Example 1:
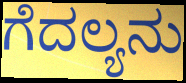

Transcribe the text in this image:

ಗೆದಲ್ಯನು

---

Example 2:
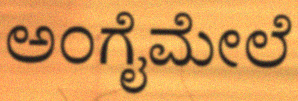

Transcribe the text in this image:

ಅಂಗೈಮೇಲೆ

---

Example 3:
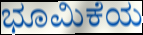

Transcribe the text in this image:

ಭೂಮಿಕೆಯ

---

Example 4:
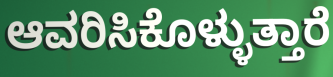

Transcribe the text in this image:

ಆವರಿಸಿಕೊಳ್ಳುತ್ತಾರೆ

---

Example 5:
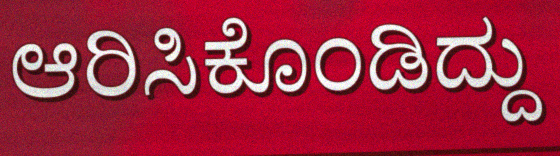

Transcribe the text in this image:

ಆರಿಸಿಕೊಂಡಿದ್ದು